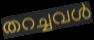
തറച്ചവൾ